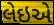
લેઇએ